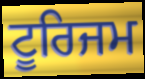
ਟੂਰਿਜਮ